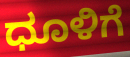
ಧೂಳಿಗೆ